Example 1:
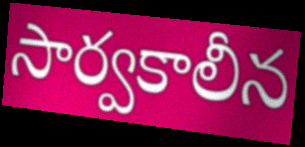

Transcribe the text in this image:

సార్వకాలీన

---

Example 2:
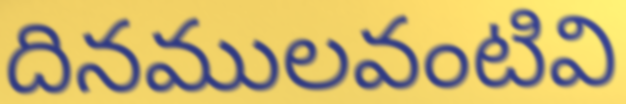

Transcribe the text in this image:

దినములవంటివి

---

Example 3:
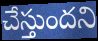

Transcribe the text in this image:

చేస్తుందని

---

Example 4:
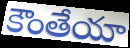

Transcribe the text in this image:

కౌంతేయా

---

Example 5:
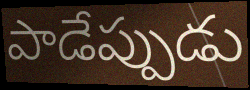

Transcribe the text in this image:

పాడేప్పుడు